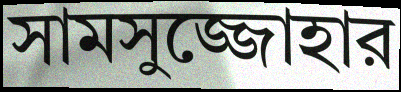
সামসুজ্জোহার